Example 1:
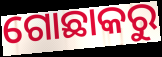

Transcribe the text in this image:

ଗୋଛାକରୁ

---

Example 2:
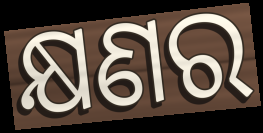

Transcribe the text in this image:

କ୍ଷଣର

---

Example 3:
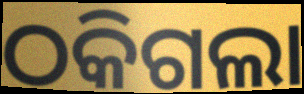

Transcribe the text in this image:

ଠକିଗଲା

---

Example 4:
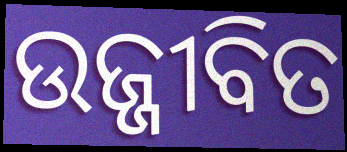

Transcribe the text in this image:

ଉଜ୍ଜୀବିତ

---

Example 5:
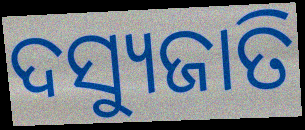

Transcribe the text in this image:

ଦସ୍ୟୁଜାତି